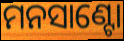
ମନସାଣ୍ଟୋ